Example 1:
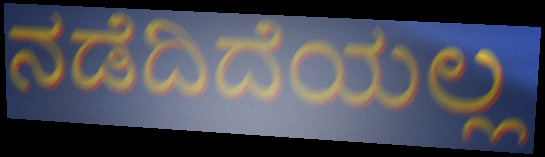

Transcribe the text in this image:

ನಡೆದಿದೆಯಲ್ಲ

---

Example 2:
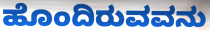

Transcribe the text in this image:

ಹೊಂದಿರುವವನು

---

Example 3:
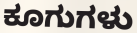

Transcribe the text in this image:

ಕೂಗುಗಳು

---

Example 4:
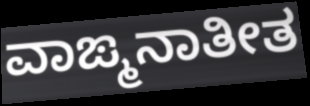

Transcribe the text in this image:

ವಾಙ್ಮನಾತೀತ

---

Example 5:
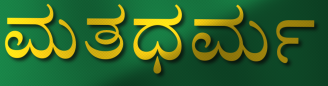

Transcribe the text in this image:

ಮತಧರ್ಮ